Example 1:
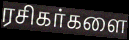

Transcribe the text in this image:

ரசிகர்களை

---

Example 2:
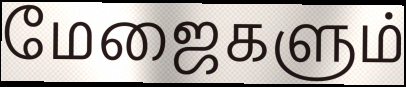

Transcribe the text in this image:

மேஜைகளும்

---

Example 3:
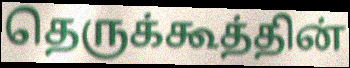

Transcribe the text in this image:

தெருக்கூத்தின்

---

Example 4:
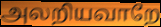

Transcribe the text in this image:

அலறியவாறே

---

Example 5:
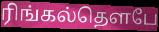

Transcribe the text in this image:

ரிங்கல்தௌபே